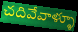
చదివేవాళ్ళూ